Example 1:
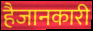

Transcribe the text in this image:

हैजानकारी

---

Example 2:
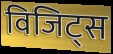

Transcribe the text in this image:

विजिट्स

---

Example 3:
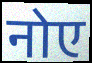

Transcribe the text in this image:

नोए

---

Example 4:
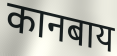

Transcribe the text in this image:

कानबाय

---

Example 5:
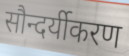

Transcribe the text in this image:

सौन्दर्यीकरण